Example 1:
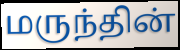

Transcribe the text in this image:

மருந்தின்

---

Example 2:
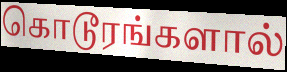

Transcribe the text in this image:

கொடூரங்களால்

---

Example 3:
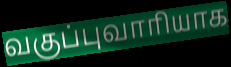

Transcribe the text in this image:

வகுப்புவாரியாக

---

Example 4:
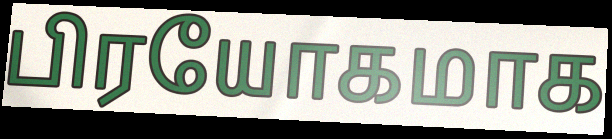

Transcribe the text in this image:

பிரயோகமாக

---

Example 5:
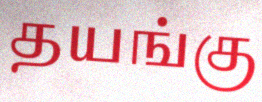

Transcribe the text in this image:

தயங்கு